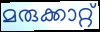
മരുക്കാറ്റ്